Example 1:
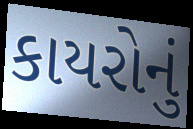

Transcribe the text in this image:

કાયરોનું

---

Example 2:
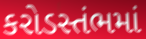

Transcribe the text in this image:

કરોડસ્તંભમાં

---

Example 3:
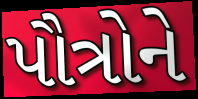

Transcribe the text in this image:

પૌત્રોને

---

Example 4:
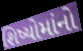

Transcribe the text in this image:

શિષ્યોમાંનો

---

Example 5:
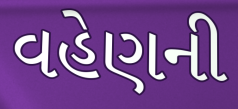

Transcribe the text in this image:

વહેણની